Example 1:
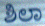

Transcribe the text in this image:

ಶಿಲಾ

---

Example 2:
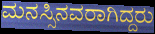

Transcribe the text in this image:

ಮನಸ್ಸಿನವರಾಗಿದ್ದರು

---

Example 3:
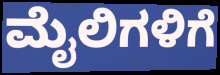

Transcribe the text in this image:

ಮೈಲಿಗಳಿಗೆ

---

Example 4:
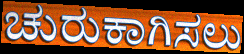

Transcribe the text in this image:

ಚುರುಕಾಗಿಸಲು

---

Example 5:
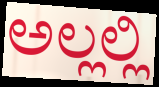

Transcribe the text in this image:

ಅಲ್ಲಲ್ಲಿ